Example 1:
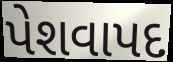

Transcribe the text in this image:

પેશવાપદ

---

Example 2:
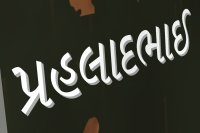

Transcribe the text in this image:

પ્રહલાદભાઈ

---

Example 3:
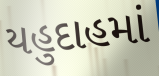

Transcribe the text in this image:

યહુદાહમાં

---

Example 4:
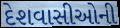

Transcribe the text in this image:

દેશવાસીઓની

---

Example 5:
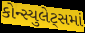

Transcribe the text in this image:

કોન્સ્યુલેટ્સમાં